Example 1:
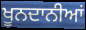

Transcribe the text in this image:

ਖੂਨਦਾਨੀਆਂ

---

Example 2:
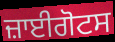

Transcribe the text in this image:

ਜ਼ਾਈਗੋਟਸ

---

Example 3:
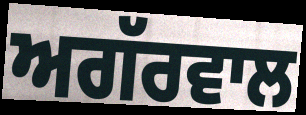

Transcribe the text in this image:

ਅਗੱਰਵਾਲ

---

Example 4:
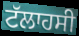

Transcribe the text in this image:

ਟੱਲਾਹਸੀ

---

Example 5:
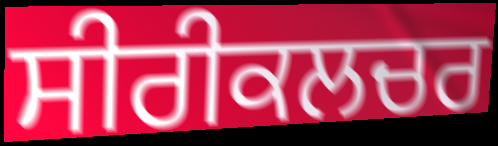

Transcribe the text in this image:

ਸੀਰੀਕਲਚਰ